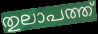
തുലാപത്ത്